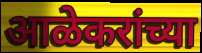
आळेकरांच्या